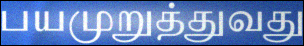
பயமுறுத்துவது